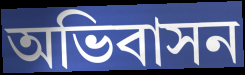
অভিবাসন